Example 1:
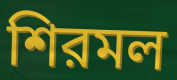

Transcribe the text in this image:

শিরমল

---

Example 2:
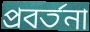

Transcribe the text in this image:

প্রবর্তনা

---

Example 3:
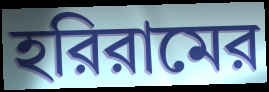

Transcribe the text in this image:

হরিরামের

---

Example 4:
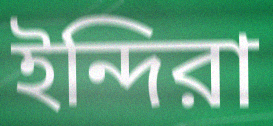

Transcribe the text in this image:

ইন্দিরা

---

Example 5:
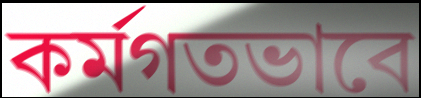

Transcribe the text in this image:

কর্মগতভাবে